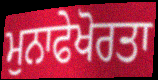
ਮੁਨਾਫੇਖੋਰਤਾ